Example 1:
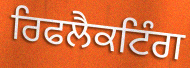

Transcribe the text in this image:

ਰਿਫਲੈਕਟਿੰਗ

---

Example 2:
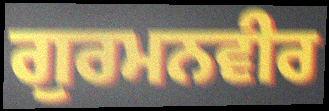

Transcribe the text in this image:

ਗੁਰਮਨਵੀਰ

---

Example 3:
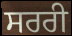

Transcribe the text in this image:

ਸਰਰੀ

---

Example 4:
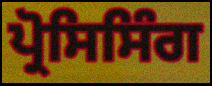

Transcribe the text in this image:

ਪ੍ਰੋਸਿਸਿੰਗ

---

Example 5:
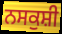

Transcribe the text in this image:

ਨਸਕੁਸ਼ੀ